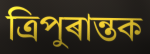
ত্ৰিপুৰান্তক